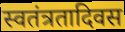
स्वतंत्रतादिवस